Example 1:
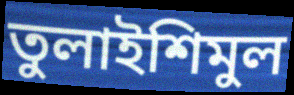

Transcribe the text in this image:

তুলাইশিমুল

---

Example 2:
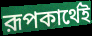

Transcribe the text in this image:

রূপকার্থেই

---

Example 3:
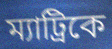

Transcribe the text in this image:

ম্যাট্রিকে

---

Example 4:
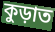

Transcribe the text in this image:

কুড়াত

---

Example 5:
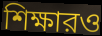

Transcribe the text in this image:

শিক্ষারও